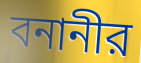
বনানীর